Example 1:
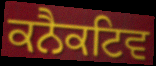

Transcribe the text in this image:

ਕਨੈਕਟਿਵ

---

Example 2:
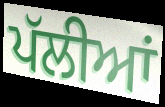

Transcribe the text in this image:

ਪੱਲੀਆਂ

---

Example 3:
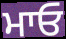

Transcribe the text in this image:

ਮਾਓ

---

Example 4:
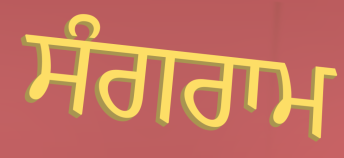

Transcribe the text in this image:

ਸੰਗਰਾਮ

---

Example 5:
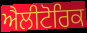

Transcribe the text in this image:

ਐਲੀਟੋਰਿਕ